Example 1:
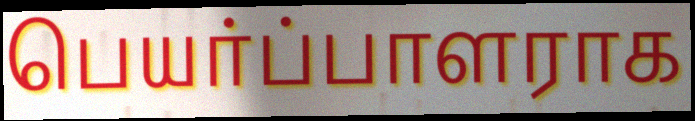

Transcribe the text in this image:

பெயர்ப்பாளராக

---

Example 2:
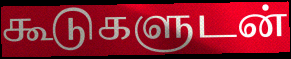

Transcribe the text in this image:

கூடுகளுடன்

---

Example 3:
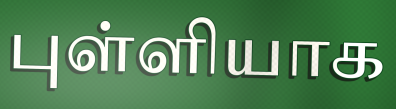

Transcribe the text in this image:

புள்ளியாக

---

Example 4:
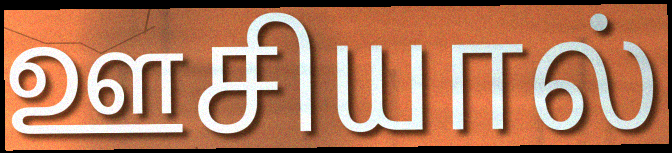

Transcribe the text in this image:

ஊசியால்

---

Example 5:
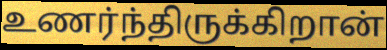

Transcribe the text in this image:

உணர்ந்திருக்கிறான்